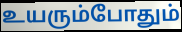
உயரும்போதும்